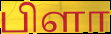
பிளா